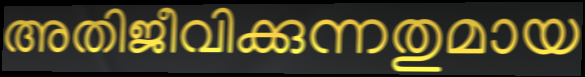
അതിജീവിക്കുന്നതുമായ